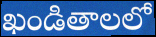
ఖండితాలలో